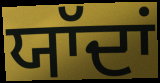
ਯਾੱਦਾਂ